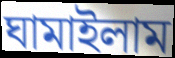
ঘামাইলাম